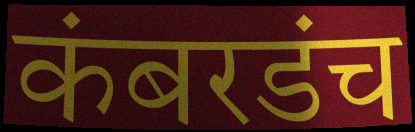
कंबरडंच